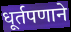
धूर्तपणाने